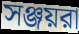
সঞ্জয়রা